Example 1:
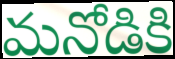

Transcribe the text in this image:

మనోడికి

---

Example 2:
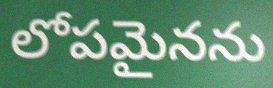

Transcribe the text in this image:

లోపమైనను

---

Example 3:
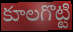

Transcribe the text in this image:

కూలగొట్టి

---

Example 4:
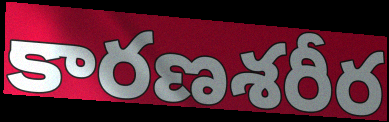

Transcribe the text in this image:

కారణశరీర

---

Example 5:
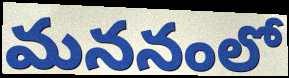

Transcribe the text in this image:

మననంలో